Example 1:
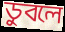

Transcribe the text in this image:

ডুবলে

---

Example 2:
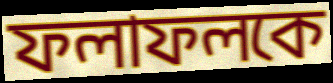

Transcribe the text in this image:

ফলাফলকে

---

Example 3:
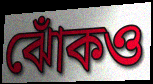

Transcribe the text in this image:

ঝোঁকও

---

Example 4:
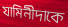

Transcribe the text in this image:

যামিনীদাকে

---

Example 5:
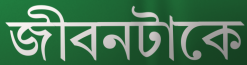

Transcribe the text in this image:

জীবনটাকে